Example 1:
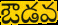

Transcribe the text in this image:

ఔడవ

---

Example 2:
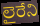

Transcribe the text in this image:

లైరేని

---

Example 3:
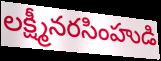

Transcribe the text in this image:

లక్ష్మీనరసింహుడి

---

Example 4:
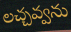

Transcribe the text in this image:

లచ్చవ్వను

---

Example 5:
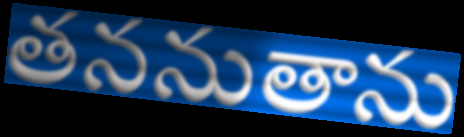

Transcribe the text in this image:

తననుతాను